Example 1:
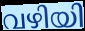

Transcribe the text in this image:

വഴിയി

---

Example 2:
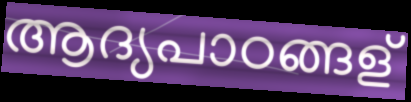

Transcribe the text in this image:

ആദ്യപാഠങ്ങള്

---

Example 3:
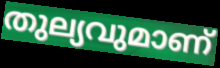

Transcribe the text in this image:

തുല്യവുമാണ്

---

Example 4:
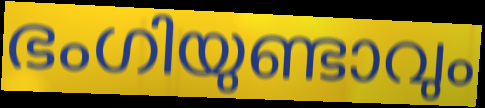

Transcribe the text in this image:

ഭംഗിയുണ്ടാവും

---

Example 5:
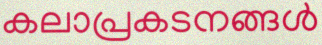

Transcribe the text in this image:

കലാപ്രകടനങ്ങൾ